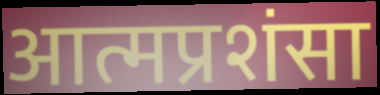
आत्मप्रशंसा